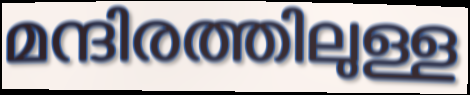
മന്ദിരത്തിലുള്ള